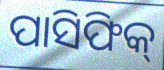
ପାସିଫିକ୍